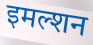
इमल्शन